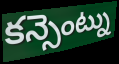
కన్సెంట్ను